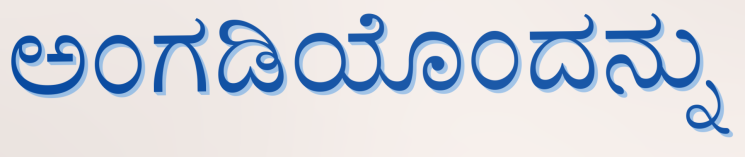
ಅಂಗಡಿಯೊಂದನ್ನು